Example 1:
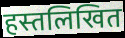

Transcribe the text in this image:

हस्तलिखित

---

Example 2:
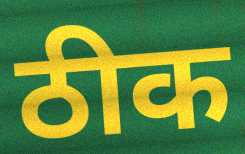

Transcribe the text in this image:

ठीक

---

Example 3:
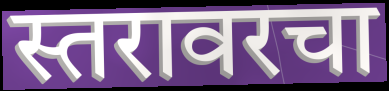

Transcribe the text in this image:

स्तरावरचा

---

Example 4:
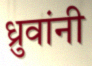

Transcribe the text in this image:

ध्रुवांनी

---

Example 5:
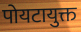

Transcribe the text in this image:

पोयटायुक्त